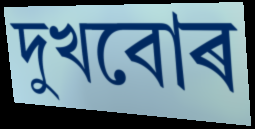
দুখবোৰ